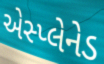
એસ્પ્લેનેડ